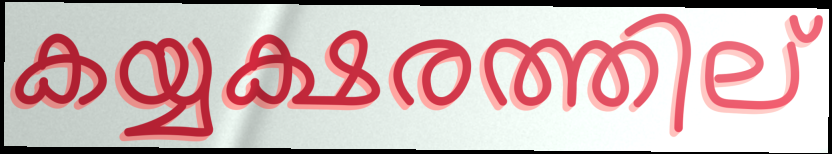
കയ്യക്ഷരത്തില്